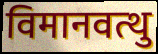
विमानवत्थु